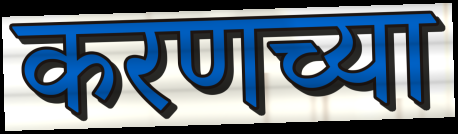
करणच्या